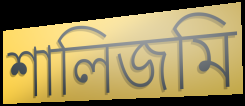
শালিজমি